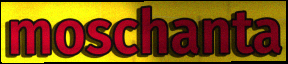
moschanta